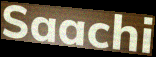
Saachi